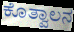
ಕೊತ್ವಾಲನ